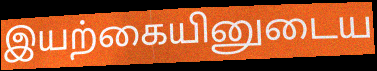
இயற்கையினுடைய